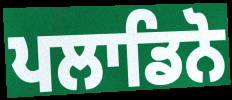
ਪਲਾਡਿਨੋ